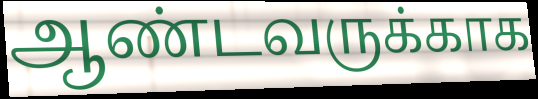
ஆண்டவருக்காக